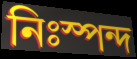
নিঃস্পন্দ